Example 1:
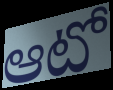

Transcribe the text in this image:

ఆటో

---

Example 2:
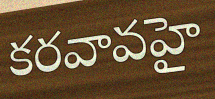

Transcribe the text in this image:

కరవావహై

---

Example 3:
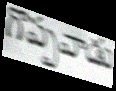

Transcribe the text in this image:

గొప్పవాడు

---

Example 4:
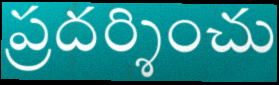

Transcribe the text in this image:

ప్రదర్శించు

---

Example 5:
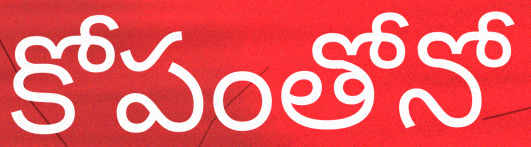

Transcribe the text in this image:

కోపంతోనో